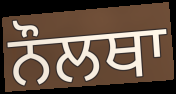
ਨੌਲਥਾ